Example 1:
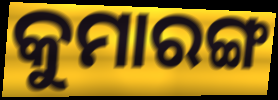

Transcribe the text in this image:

କୁମାରଙ୍ଗ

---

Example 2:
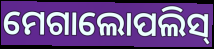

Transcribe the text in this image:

ମେଗାଲୋପଲିସ୍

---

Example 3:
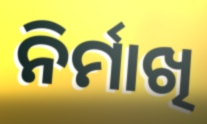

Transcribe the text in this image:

ନିର୍ମାଖି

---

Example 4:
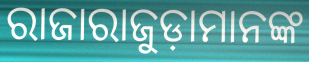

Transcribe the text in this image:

ରାଜାରାଜୁଡ଼ାମାନଙ୍କ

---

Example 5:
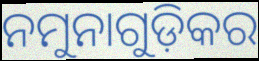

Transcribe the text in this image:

ନମୁନାଗୁଡ଼ିକର